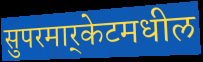
सुपरमार्केटमधील